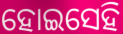
ହୋଇସେହି